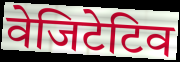
वेजिटेटिव